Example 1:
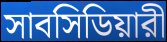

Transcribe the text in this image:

সাবসিডিয়ারী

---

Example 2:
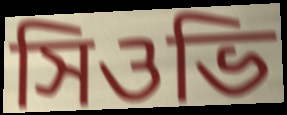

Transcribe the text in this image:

সিওভি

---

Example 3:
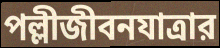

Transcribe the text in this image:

পল্লীজীবনযাত্রার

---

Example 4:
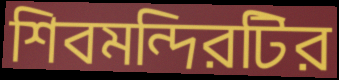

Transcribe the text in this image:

শিবমন্দিরটির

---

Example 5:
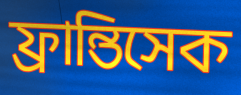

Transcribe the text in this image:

ফ্রান্তিসেক